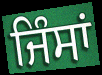
ਜਿੰਸਾਂ